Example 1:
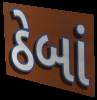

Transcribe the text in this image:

ઠેબાં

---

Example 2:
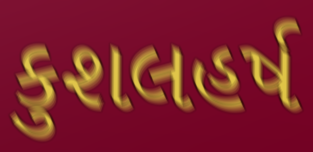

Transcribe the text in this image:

કુશલહર્ષ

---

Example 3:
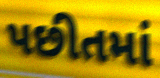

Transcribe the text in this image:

પછીતમાં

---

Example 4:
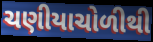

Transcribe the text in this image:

ચણીયાચોળીથી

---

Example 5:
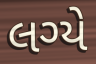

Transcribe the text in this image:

લગ્યે